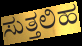
ಸುತ್ತಲಿಹ